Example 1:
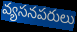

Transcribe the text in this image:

వ్యసనపరులు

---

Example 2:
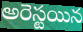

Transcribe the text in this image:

అరెస్టయిన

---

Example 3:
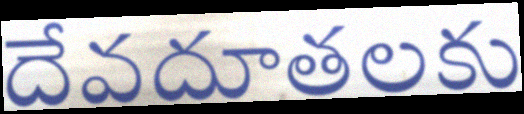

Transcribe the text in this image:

దేవదూతలకు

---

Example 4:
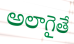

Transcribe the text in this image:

అలాగైతే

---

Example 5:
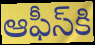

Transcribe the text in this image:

ఆఫీస్‌కి